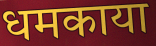
धमकाया